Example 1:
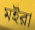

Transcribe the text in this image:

মইরা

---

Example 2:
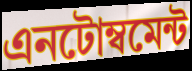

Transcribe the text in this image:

এনটোম্বমেন্ট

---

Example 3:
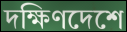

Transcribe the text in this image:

দক্ষিণদেশে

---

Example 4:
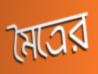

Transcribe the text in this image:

মৈত্রের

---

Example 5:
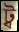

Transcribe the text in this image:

ট্ব